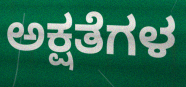
ಅಕ್ಷತೆಗಳ